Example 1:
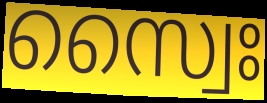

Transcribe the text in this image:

സ്വൈഃ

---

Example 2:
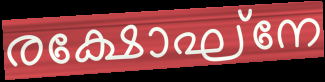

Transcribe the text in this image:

രക്ഷോഘ്നേ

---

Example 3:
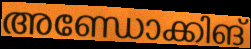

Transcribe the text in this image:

അണ്ഡോക്കിങ്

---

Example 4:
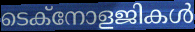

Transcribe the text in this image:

ടെക്നോളജികൾ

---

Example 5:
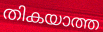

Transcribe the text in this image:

തികയാത്ത